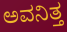
ಅವನಿತ್ತ